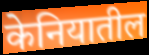
केनियातील